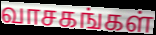
வாசகங்கள்